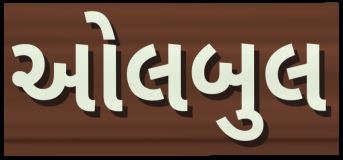
ઓલબુલ